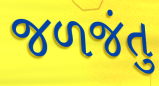
જળજંતુ